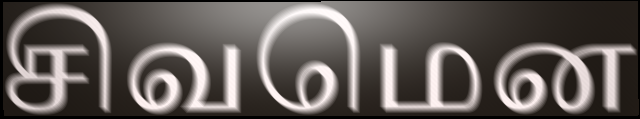
சிவமென